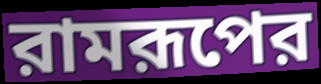
রামরূপের